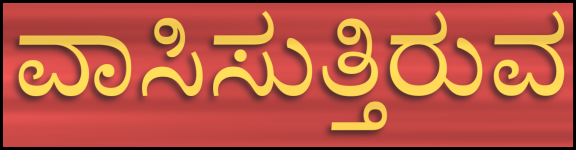
ವಾಸಿಸುತ್ತಿರುವ